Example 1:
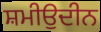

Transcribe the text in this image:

ਸ਼ਮੀਉਦੀਨ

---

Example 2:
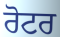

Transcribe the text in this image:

ਰੋਟਰ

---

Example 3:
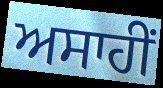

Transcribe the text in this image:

ਅਸਾਹੀਂ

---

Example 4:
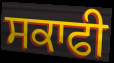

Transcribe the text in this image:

ਸਕਾਫੀ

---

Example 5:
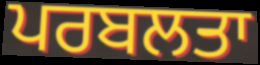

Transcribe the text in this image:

ਪਰਬਲਤਾ